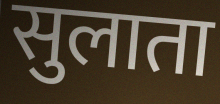
सुलाता